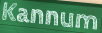
Kannum